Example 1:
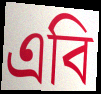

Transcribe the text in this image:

এবি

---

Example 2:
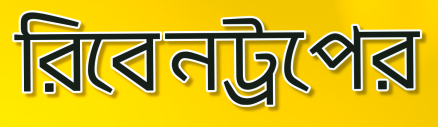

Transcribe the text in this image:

রিবেনট্রপের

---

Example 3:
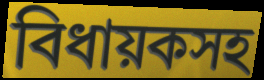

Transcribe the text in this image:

বিধায়কসহ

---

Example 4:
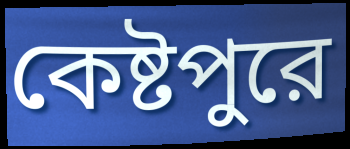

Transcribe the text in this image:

কেষ্টপুরে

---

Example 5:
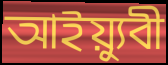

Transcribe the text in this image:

আইয়্যুবী